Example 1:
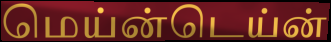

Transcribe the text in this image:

மெய்ன்டெய்ன்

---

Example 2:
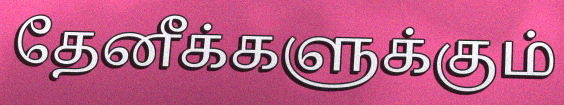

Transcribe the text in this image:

தேனீக்களுக்கும்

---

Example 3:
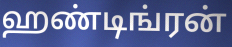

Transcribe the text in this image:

ஹண்டிங்ரன்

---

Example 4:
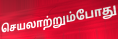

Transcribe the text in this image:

செயலாற்றும்போது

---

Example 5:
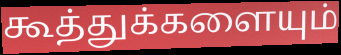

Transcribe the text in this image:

கூத்துக்களையும்